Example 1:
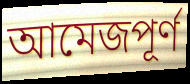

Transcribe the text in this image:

আমেজপূর্ণ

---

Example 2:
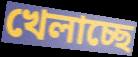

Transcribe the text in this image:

খেলাচ্ছে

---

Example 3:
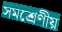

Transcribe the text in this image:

সমশ্রেণীয়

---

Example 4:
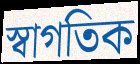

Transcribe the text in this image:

স্বাগতিক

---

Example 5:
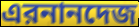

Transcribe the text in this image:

এরনানদেজ